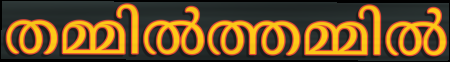
തമ്മിൽത്തമ്മിൽ